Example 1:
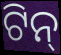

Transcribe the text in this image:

ଟିନ୍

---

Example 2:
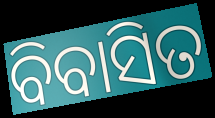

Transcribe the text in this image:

ବିବାସିତ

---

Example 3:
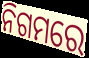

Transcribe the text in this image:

ନିଗମରେ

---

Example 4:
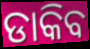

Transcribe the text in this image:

ଡାକିବ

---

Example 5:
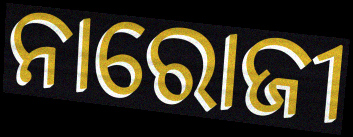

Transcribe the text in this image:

ନାରୋଜୀ